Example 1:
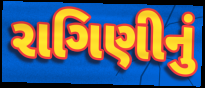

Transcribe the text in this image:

રાગિણીનું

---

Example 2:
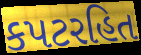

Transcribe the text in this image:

કપટરહિત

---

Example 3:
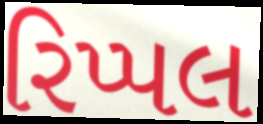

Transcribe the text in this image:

રિપ્પલ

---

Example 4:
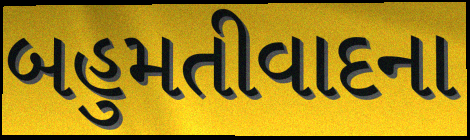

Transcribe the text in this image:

બહુમતીવાદના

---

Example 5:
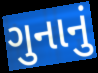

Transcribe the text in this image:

ગુનાનું